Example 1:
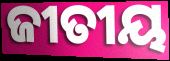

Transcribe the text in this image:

ଜୀତୀୟ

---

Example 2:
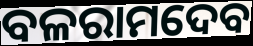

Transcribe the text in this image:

ବଳରାମଦେବ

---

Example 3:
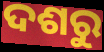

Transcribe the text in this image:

ଦଶରୁ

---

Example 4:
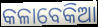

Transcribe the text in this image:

କଳାବେକିଆ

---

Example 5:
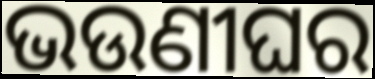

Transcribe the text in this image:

ଭଉଣୀଘର